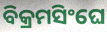
ବିକ୍ରମସିଂଘେ